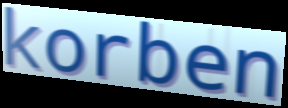
korben